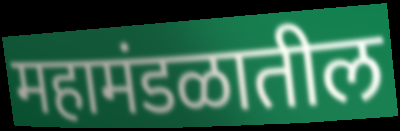
महामंडळातील